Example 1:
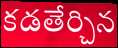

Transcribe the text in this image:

కడతేర్చిన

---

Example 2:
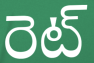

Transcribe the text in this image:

రెట్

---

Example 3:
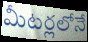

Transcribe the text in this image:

మీటర్లలోనే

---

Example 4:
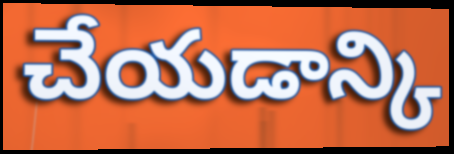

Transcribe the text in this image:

చేయడాన్కి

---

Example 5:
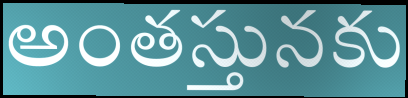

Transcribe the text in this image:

అంతస్తునకు